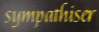
sympathiser